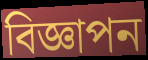
বিজ্ঞাপন